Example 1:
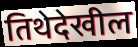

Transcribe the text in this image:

तिथेदेखील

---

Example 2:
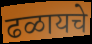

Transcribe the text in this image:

ढळायचे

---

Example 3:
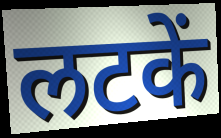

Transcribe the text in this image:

लटकें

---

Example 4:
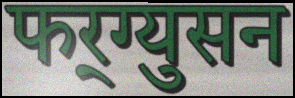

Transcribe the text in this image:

फर्ग्युसन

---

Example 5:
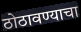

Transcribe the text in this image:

ठोठावण्याचा